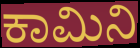
ಕಾಮಿನಿ